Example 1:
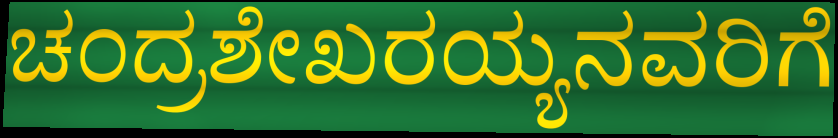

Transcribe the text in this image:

ಚಂದ್ರಶೇಖರಯ್ಯನವರಿಗೆ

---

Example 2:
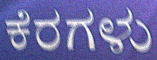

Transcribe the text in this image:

ಕೆರಗಳು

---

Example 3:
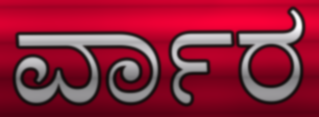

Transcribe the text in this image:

ರ್ವಾರ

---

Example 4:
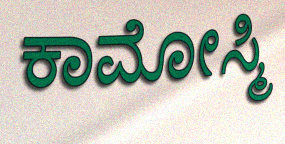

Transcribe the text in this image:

ಕಾಮೋಸ್ಮಿ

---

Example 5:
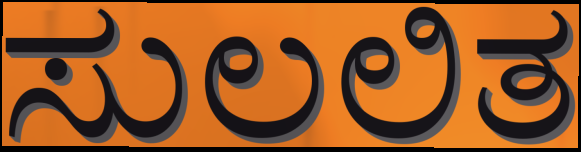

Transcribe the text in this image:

ಸುಲಲಿತ